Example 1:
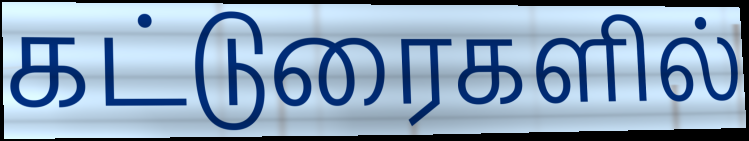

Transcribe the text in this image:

கட்டுரைகளில்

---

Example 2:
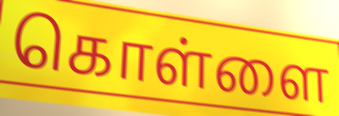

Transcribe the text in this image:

கொள்ளை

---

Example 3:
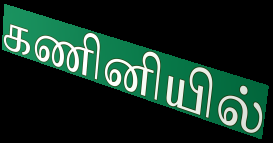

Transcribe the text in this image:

கணினியில்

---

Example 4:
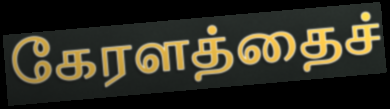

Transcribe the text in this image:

கேரளத்தைச்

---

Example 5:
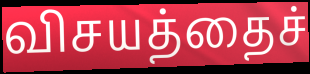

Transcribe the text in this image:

விசயத்தைச்